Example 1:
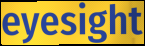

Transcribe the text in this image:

eyesight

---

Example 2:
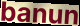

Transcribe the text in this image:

banun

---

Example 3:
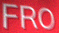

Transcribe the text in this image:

FRO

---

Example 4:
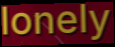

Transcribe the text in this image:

lonely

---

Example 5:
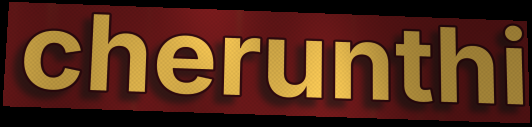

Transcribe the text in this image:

cherunthi